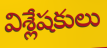
విశ్లేషకులు